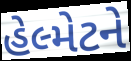
હેલ્મેટને